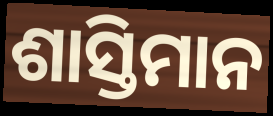
ଶାସ୍ତିମାନ